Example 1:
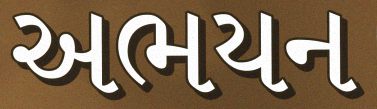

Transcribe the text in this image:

અભયન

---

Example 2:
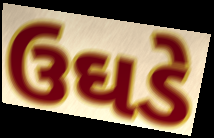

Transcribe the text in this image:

ઉઘડે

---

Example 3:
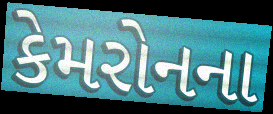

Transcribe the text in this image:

કેમરોનના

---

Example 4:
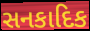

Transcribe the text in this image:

સનકાદિક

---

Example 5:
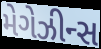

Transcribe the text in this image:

મેગેઝીન્સ